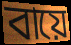
বায়ে